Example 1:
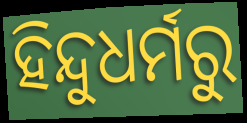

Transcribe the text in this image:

ହିନ୍ଦୁଧର୍ମରୁ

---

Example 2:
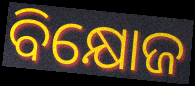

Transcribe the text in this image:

ବିକ୍ଷୋଜ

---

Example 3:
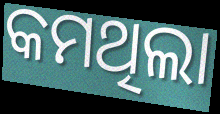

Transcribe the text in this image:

କମଥିଲା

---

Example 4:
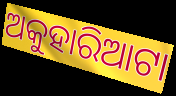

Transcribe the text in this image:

ଅକୁହାରିଆଟା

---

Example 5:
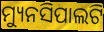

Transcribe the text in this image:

ମ୍ୟୁନସିପାଲଟି